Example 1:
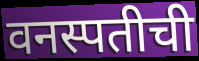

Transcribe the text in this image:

वनस्पतीची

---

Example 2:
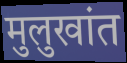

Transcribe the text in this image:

मुलुखांत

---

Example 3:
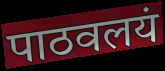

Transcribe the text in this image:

पाठवलयं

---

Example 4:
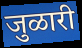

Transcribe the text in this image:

जुळारी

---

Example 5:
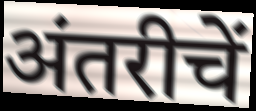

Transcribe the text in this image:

अंतरीचें